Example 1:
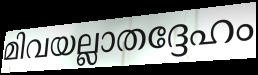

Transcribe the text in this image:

മിവയല്ലാതദ്ദേഹം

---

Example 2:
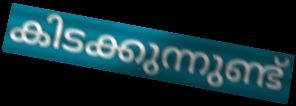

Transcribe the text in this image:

കിടക്കുന്നുണ്ട്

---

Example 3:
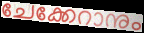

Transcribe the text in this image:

ചേക്കേറാനും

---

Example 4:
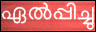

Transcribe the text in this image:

ഏൽപ്പിച്ചു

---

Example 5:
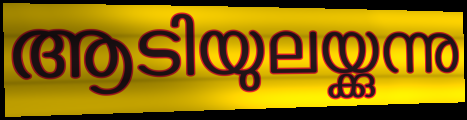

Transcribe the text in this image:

ആടിയുലയ്ക്കുന്നു